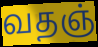
வதஞ்